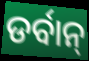
ଡର୍ବାନ୍